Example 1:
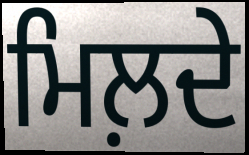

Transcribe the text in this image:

ਮਿਲ਼ਦੇ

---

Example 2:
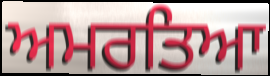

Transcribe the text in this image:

ਅਮਰਤਿਆ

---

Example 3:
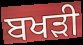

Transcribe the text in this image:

ਬਖੜੀ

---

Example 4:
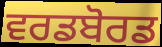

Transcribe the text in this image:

ਵਰਡਬੋਰਡ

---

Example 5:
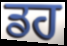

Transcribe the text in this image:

ਡਹ